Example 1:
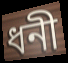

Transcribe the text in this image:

ধনী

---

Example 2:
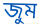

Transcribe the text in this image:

জুম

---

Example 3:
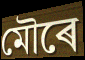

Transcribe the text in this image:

মৌৰে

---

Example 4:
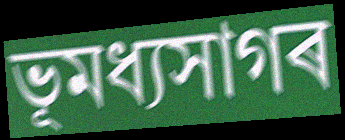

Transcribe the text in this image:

ভূমধ্যসাগৰ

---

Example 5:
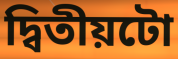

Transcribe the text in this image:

দ্বিতীয়টো